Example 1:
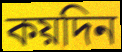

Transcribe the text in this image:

কয়দিন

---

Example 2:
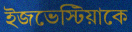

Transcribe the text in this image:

ইজভেস্টিয়াকে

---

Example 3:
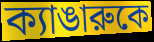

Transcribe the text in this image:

ক্যাঙারুকে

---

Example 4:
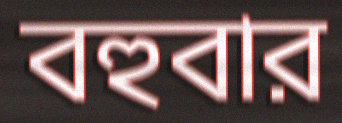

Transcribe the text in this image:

বহুবার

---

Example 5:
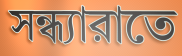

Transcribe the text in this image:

সন্ধ্যারাতে